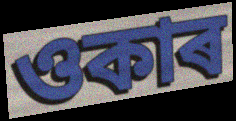
ওকাৰ